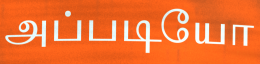
அப்படியோ